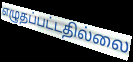
எழுதப்பட்டதில்லை